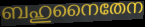
ബഹുനൈതേന